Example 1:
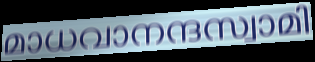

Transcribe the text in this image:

മാധവാനന്ദസ്വാമി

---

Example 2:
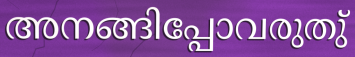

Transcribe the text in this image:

അനങ്ങിപ്പോവരുതു്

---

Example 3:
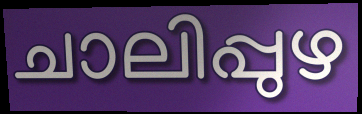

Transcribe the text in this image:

ചാലിപ്പുഴ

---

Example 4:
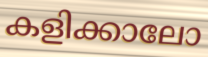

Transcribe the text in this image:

കളിക്കാലോ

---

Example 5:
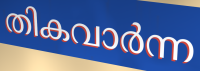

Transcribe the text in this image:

തികവാർന്ന